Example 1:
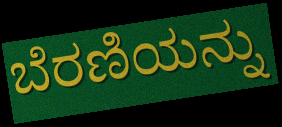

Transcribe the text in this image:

ಬೆರಣಿಯನ್ನು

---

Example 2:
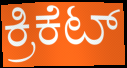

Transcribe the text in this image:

ಕ್ರಿಕೆಟ್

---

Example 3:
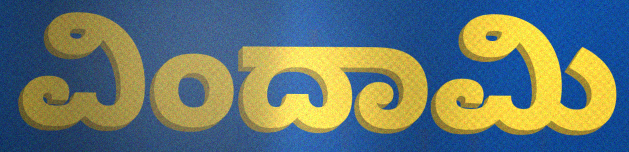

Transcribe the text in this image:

ವಿಂದಾಮಿ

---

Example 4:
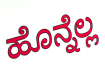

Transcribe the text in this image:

ಹೊನ್ನೆಲ್ಲ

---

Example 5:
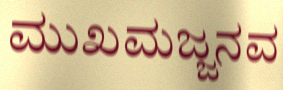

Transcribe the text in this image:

ಮುಖಮಜ್ಜನವ